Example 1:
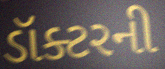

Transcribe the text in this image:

ડૉક્ટરની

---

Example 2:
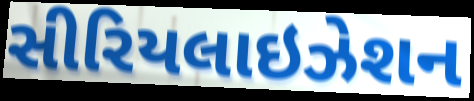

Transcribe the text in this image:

સીરિયલાઇઝેશન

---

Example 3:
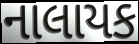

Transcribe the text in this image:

નાલાયક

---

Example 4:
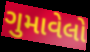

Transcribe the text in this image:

ગુમાવેલો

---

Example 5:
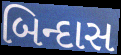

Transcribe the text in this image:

બિન્દાસ